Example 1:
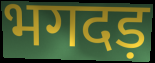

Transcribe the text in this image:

भगदड़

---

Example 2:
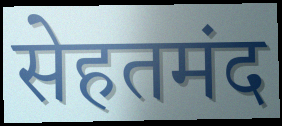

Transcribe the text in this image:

सेहतमंद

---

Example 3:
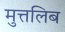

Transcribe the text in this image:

मुत्तलिब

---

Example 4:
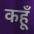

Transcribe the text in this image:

कहूँ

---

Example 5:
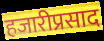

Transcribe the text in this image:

हजारीप्रसाद